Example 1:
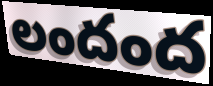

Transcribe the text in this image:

లందంద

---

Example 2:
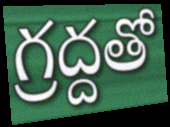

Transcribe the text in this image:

గ్రద్దతో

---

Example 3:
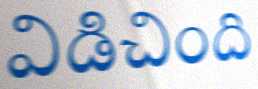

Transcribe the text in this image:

విడిచింది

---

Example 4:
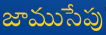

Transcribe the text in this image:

జాముసేపు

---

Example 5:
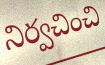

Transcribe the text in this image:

నిర్వచించి